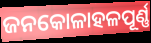
ଜନକୋଳାହଳପୂର୍ଣ୍ଣ